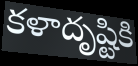
కళాదృష్టికి